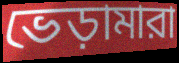
ভেড়ামারা